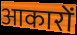
आकारों